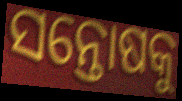
ସନ୍ତୋଷକୁ